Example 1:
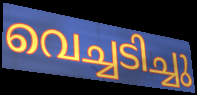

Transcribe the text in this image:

വെച്ചടിച്ചു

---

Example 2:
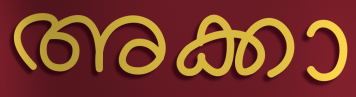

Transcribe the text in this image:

അക്കാ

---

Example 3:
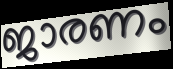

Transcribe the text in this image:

ജാരണം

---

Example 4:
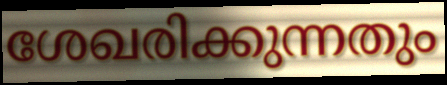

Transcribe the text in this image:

ശേഖരിക്കുന്നതും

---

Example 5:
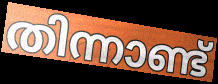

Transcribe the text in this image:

തിന്നാണ്ട്